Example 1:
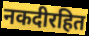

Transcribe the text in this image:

नकदीरहित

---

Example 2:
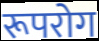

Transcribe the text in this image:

रूपरोग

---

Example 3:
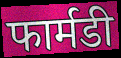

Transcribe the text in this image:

फार्मडी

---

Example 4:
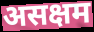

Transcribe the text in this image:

असक्षम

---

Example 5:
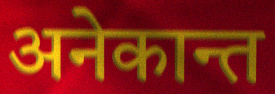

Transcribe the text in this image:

अनेकान्त